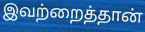
இவற்றைத்தான்